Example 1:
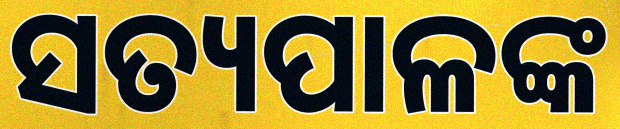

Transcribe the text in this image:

ସତ୍ୟପାଳଙ୍କ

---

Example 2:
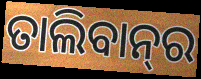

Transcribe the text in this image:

ତାଲିବାନ୍‌ର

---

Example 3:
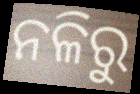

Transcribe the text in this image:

ନଳିରୁ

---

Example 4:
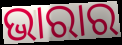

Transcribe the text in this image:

ଭାରାର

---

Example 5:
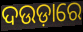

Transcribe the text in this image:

ଦଉଡ଼ାରେ